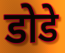
डोडे